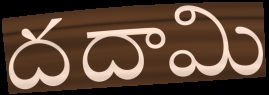
దదామి